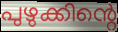
പുഴുക്കിന്റെ